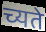
च्यते